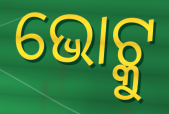
ଭୋଟ୍କୁ